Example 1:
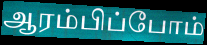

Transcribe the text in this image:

ஆரம்பிப்போம்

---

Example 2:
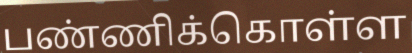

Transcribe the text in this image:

பண்ணிக்கொள்ள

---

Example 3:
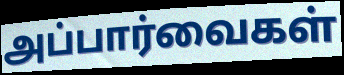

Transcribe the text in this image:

அப்பார்வைகள்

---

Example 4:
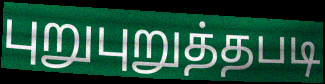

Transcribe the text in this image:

புறுபுறுத்தபடி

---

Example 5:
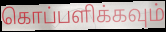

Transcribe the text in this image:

கொப்பளிக்கவும்